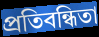
প্রতিবন্ধিতা